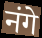
नंगे